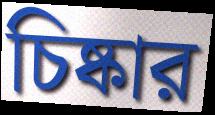
চিষ্কার